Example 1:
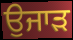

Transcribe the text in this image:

ਉਜਾੜ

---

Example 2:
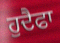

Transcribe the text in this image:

ਹੁਦੈਫਾ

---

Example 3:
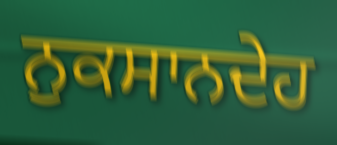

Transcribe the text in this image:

ਨੁਕਸਾਨਦੇਹ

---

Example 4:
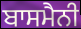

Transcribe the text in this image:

ਬਾਸਮੈਨੀ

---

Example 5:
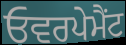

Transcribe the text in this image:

ਓਵਰਪੇਮੈਂਟ